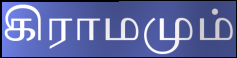
கிராமமும்